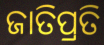
ଜାତିପ୍ରତି